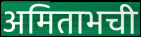
अमिताभची